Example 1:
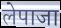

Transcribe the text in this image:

लेपाजा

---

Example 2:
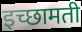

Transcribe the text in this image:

इच्छामती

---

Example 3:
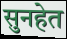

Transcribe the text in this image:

सुनहेत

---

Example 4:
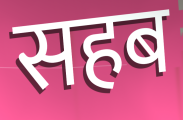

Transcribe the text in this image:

सहब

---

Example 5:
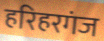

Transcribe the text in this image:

हरिहरगंज